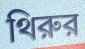
থিরুর